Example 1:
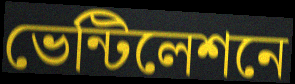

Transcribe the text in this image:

ভেন্টিলেশনে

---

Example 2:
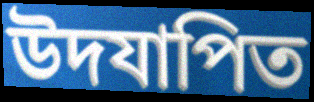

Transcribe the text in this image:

উদযাপিত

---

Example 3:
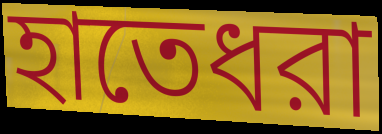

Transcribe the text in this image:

হাতেধরা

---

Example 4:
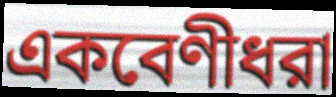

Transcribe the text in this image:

একবেণীধরা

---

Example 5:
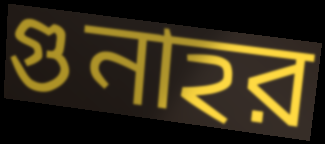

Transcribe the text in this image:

গুনাহর